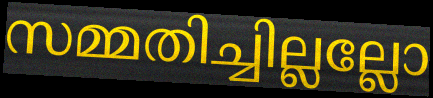
സമ്മതിച്ചില്ലല്ലോ